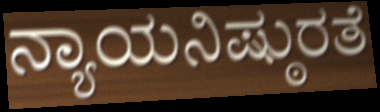
ನ್ಯಾಯನಿಷ್ಠುರತೆ